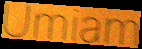
Umiam